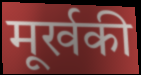
मूर्खकी